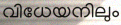
വിധേയനിലും